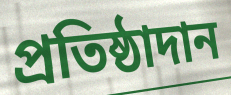
প্রতিষ্ঠাদান